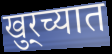
खुर्च्यात